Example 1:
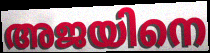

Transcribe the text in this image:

അജയിനെ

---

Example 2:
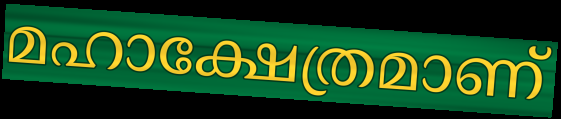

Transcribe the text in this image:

മഹാക്ഷേത്രമാണ്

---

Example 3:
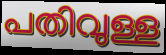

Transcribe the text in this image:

പതിവുള്ള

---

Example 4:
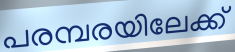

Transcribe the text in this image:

പരമ്പരയിലേക്ക്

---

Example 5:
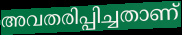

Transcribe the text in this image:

അവതരിപ്പിച്ചതാണ്